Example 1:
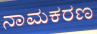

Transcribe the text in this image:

ನಾಮಕರಣ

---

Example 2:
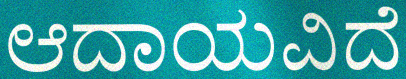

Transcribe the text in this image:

ಆದಾಯವಿದೆ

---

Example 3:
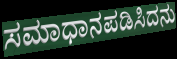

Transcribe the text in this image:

ಸಮಾಧಾನಪಡಿಸಿದನು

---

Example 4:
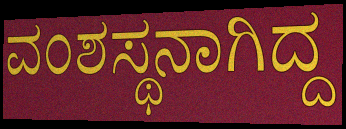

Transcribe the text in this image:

ವಂಶಸ್ಥನಾಗಿದ್ದ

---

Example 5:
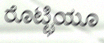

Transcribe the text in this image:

ರೊಟ್ಟಿಯೂ